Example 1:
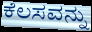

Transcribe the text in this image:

ಕೆಲಸವನ್ನು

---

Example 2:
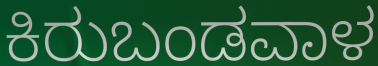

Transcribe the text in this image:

ಕಿರುಬಂಡವಾಳ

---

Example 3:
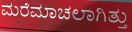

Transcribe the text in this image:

ಮರೆಮಾಚಲಾಗಿತ್ತು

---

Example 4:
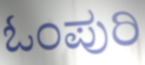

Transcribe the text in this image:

ಓಂಪುರಿ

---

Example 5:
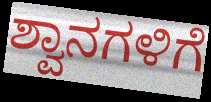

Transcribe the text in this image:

ಶ್ವಾನಗಳಿಗೆ